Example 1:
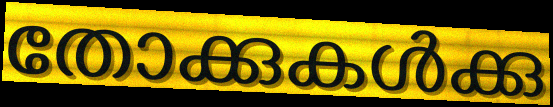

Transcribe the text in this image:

തോക്കുകൾക്കു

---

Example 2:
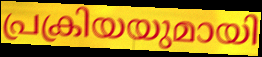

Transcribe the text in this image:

പ്രക്രിയയുമായി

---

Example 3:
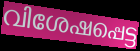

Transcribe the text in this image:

വിശേഷപ്പെട്ട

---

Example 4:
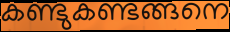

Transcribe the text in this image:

കണ്ടുകണ്ടങ്ങനെ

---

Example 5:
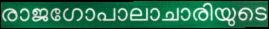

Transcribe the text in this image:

രാജഗോപാലാചാരിയുടെ